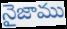
నైజాము